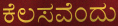
ಕೆಲಸವೆಂದು